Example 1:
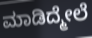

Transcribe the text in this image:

ಮಾಡಿದ್ಮೇಲೆ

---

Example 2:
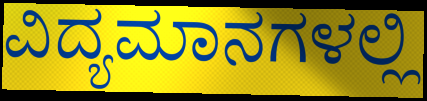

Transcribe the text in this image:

ವಿದ್ಯಮಾನಗಳಲ್ಲಿ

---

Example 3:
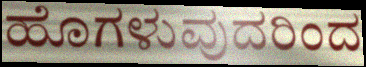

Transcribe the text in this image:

ಹೊಗಳುವುದರಿಂದ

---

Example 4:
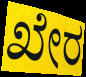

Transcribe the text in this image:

ಖೇರ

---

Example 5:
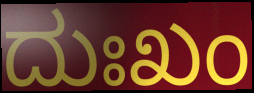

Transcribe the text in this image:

ದುಃಖಂ